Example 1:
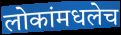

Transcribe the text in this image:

लोकांमधलेच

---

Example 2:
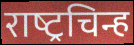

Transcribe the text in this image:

राष्ट्रचिन्ह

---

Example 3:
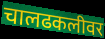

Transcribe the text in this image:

चालढकलीवर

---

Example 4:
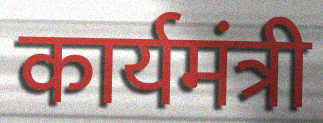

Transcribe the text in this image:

कार्यमंत्री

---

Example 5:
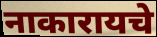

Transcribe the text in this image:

नाकारायचे